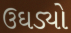
ઉઘડ્યો